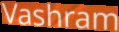
Vashram